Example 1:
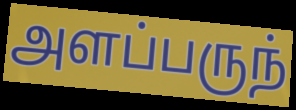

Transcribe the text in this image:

அளப்பருந்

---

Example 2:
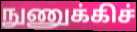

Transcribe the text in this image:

நுணுக்கிச்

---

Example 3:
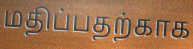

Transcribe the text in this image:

மதிப்பதற்காக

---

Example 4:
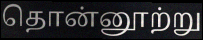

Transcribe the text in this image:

தொன்னூற்று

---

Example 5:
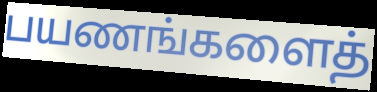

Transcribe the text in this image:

பயணங்களைத்